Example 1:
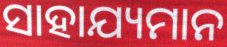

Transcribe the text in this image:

ସାହାଯ୍ୟମାନ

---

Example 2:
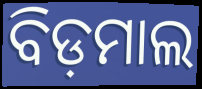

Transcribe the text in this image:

ବିଡ଼ମାଲ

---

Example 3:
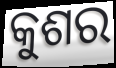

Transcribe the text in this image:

କୁଶର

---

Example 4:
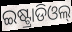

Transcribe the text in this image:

ଇଷ୍ଟ୍ରାଡିଓଲ୍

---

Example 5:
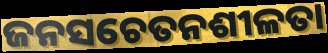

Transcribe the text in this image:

ଜନସଚେତନଶୀଳତା